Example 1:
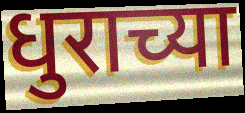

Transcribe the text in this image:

धुराच्या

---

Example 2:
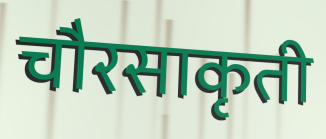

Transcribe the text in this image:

चौरसाकृती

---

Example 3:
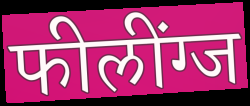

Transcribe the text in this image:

फीलींग्ज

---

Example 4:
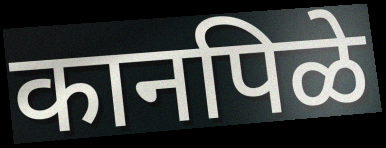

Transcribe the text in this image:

कानपिळे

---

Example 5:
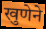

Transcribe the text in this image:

खुणेने